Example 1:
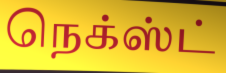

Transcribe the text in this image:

நெக்ஸ்ட்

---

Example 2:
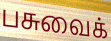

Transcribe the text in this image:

பசுவைக்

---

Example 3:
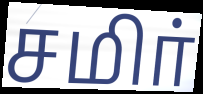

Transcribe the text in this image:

சமிர்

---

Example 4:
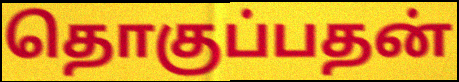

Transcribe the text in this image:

தொகுப்பதன்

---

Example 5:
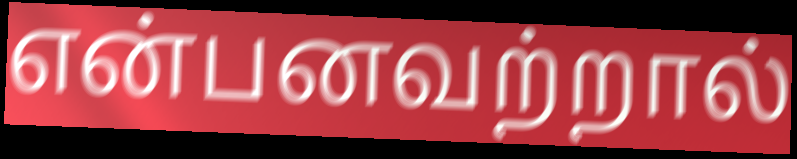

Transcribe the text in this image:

என்பனவற்றால்